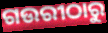
ଗଉରୀଠାରୁ